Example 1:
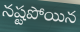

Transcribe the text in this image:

నష్టపోయిన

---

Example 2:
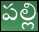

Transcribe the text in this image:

పల్లి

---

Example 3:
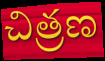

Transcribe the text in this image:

చిత్రణ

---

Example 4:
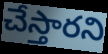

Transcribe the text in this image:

చేస్తారని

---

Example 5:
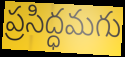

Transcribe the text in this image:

ప్రసిద్ధమగు